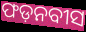
ଫଡ଼ନବୀସ